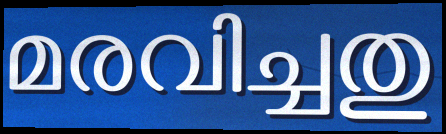
മരവിച്ചതു